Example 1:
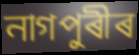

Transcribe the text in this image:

নাগপুৰীৰ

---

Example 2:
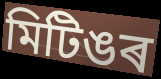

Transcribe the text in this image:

মিটিঙৰ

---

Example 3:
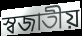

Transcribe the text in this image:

স্বজাতীয়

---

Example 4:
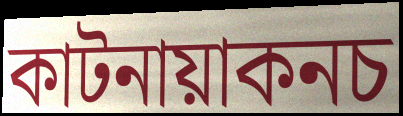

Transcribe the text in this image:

কাটনায়াকনচ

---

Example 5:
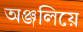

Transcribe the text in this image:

অঞ্জলিয়ে